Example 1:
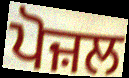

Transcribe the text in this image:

ਪੋਜ਼ਲ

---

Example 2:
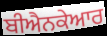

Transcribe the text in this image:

ਬੀਐਨਕੇਆਰ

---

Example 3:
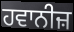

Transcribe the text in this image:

ਹਵਾਨੀਜ਼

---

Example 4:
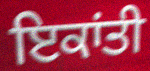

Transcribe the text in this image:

ਇਕਾਂਤੀ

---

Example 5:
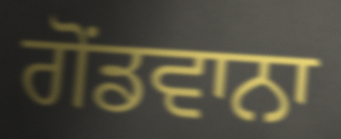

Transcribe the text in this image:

ਗੋਂਡਵਾਨਾ